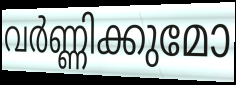
വർണ്ണിക്കുമോ